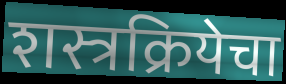
शस्त्रक्रियेचा